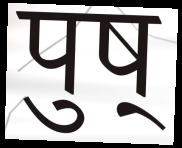
पुष्